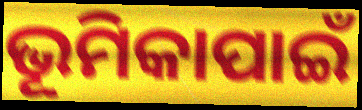
ଭୂମିକାପାଇଁ